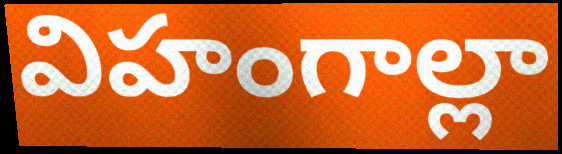
విహంగాల్లా